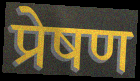
प्रेषण